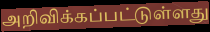
அறிவிக்கப்பட்டுள்ளது